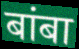
बांबा